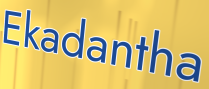
Ekadantha